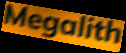
Megalith